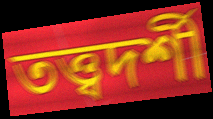
তত্ত্বদর্শী